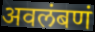
अवलंबणं